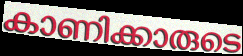
കാണിക്കാരുടെ